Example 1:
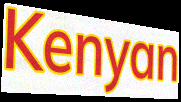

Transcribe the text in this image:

Kenyan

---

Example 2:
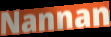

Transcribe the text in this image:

Nannan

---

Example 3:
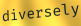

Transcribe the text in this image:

diversely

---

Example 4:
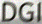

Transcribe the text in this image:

DGI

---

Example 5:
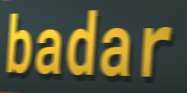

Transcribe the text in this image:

badar